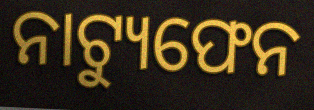
ନାଟ୍ୟୁଫେନ